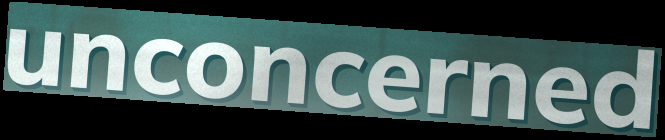
unconcerned